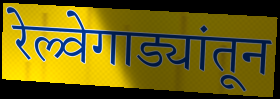
रेल्वेगाड्यांतून